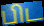
பிட